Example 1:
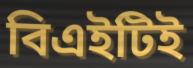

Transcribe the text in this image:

বিএইটিই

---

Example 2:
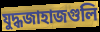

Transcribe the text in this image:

যুদ্ধজাহাজগুলি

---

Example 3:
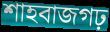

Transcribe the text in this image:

শাহবাজগঢ়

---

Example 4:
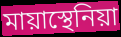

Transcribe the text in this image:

মায়াস্থেনিয়া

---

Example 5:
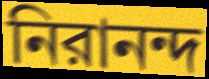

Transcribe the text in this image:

নিরানন্দ